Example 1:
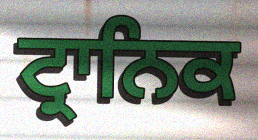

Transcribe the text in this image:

ਟ੍ਰਾਨਿਕ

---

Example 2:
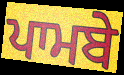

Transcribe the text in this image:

ਪਾਮਬੇ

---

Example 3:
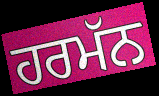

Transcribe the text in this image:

ਹਰਮੱਨ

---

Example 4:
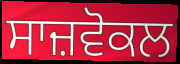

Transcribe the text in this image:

ਸਾਜ਼ਵੋਕਲ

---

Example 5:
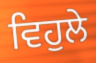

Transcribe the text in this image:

ਵਿਹੁਲੇ